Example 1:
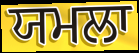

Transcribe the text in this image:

ਯਮਲਾ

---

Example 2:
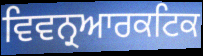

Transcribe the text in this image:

ਵਿਵਨ੍ਰਆਰਕਟਿਕ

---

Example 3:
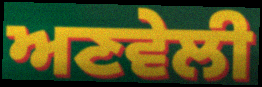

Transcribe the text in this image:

ਅਣਵੇਲੀ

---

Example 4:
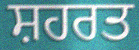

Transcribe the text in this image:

ਸ਼ਹਰਤ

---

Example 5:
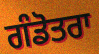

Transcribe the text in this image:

ਗੰਡੋਤਰਾ